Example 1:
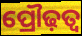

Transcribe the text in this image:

ପ୍ରୌଢ଼ତ୍ୱ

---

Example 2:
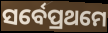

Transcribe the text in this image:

ସର୍ବେପ୍ରଥମେ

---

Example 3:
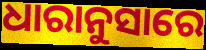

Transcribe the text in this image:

ଧାରାନୁସାରେ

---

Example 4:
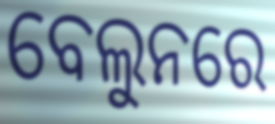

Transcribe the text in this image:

ବେଲୁନରେ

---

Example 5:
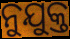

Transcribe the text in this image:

ନୁଯୁକ୍ତ